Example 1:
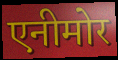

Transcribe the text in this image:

एनीमोर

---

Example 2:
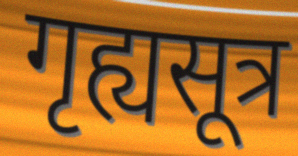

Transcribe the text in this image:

गृह्यसूत्र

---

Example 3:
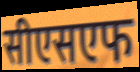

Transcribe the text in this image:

सीएसएफ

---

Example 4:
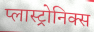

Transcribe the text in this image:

प्लास्ट्रोनिक्स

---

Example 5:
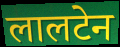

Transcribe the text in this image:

लालटेन